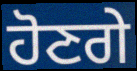
ਹੋਣਗੇ